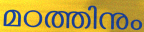
മഠത്തിനും